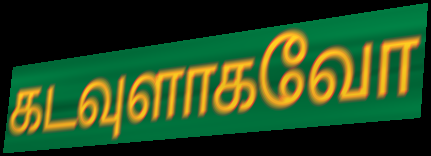
கடவுளாகவோ